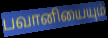
பவானியையும்